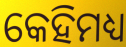
କେହିମଧ୍ୟ